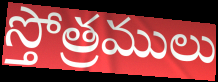
స్తోత్రములు